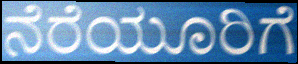
ನೆರೆಯೂರಿಗೆ